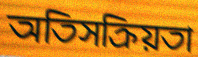
অতিসক্রিয়তা